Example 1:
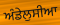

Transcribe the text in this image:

ਅੰਡੇਲੁਸੀਆ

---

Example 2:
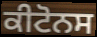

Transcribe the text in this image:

ਕੀਟੋਨਸ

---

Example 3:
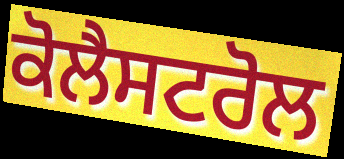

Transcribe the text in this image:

ਕੋਲੈਸਟਰੋਲ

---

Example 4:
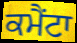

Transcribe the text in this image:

ਕਮੈਂਟਾ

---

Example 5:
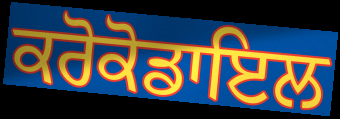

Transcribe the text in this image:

ਕਰੋਕੋਡਾਇਲ